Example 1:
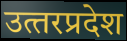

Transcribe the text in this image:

उत्‍तरप्रदेश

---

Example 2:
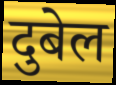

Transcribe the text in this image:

दुबेल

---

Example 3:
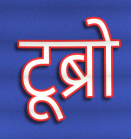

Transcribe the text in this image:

टूब्रो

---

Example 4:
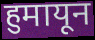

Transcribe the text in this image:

हुमायून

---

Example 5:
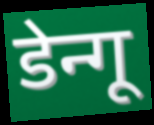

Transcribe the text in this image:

डेन्गू